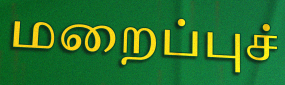
மறைப்புச்